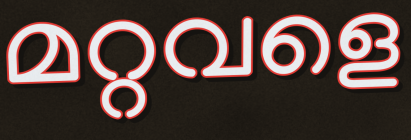
മറ്റവളെ